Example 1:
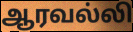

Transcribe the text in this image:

ஆரவல்லி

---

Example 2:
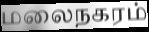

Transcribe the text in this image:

மலைநகரம்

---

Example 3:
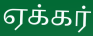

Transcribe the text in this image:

ஏக்கர்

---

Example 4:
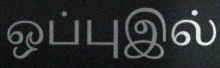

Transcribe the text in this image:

ஒப்புஇல்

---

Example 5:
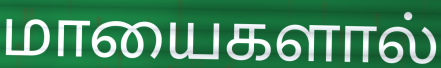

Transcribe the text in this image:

மாயைகளால்